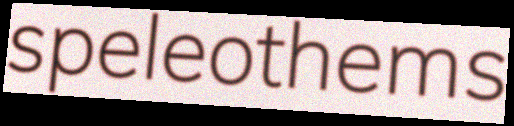
speleothems